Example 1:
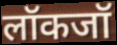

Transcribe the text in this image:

लॉकजॉ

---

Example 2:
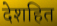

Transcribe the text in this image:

देशहित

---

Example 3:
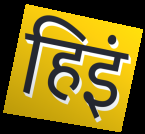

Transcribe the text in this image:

हिइं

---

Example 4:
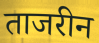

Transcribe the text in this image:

ताजरीन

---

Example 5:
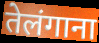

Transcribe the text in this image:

तेलंगाना